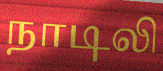
நாடிலி